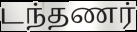
டந்தணர்